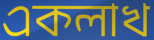
একলাখ